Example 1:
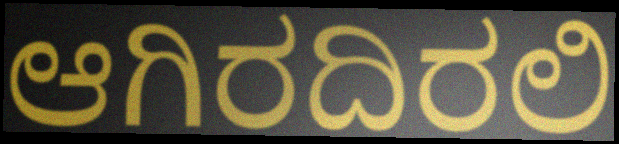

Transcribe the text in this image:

ಆಗಿರದಿರಲಿ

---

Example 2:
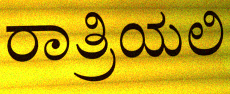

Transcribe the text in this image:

ರಾತ್ರಿಯಲಿ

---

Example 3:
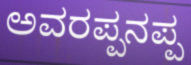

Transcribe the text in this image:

ಅವರಪ್ಪನಪ್ಪ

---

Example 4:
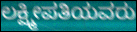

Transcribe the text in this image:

ಲಕ್ಷ್ಮೀಪತಿಯವರು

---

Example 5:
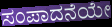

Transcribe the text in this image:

ಸಂಪಾದನೆಯೇ